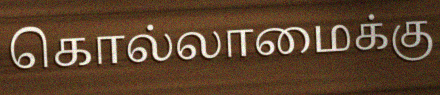
கொல்லாமைக்கு